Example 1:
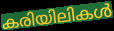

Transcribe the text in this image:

കരിയിലികൾ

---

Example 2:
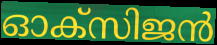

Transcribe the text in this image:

ഓക്സിജൻ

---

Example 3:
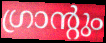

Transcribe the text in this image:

ഗ്രാന്റും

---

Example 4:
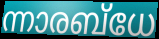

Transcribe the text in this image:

ന്നാരബ്ധേ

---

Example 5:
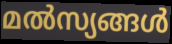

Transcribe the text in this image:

മൽസ്യങ്ങൾ